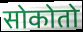
सोकोतो